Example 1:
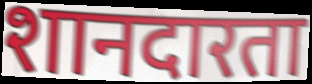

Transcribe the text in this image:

शानदारता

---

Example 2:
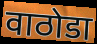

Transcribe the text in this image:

वाठोडा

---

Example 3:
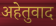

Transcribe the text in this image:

अहेतुवाद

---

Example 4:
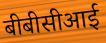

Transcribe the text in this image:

बीबीसीआई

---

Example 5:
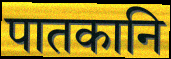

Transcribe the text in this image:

पातकानि